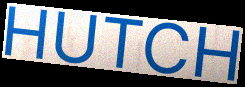
HUTCH